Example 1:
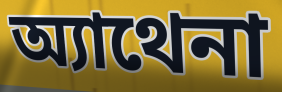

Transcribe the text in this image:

অ্যাথেনা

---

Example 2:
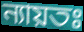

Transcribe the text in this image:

ন্যায়তঃ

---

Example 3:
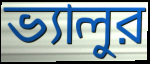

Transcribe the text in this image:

ভ্যালুর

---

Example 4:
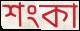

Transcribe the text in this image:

শংকা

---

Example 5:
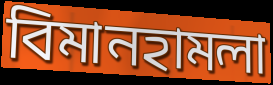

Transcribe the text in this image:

বিমানহামলা